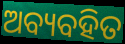
ଅବ୍ୟବହିତ